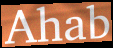
Ahab